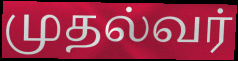
முதல்வர்